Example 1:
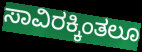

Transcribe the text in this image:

ಸಾವಿರಕ್ಕಿಂತಲೂ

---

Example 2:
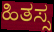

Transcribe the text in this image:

ಹಿತಸ್ಸ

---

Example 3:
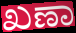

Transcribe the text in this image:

ಖಣಾ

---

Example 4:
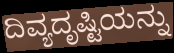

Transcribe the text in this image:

ದಿವ್ಯದೃಷ್ಟಿಯನ್ನು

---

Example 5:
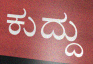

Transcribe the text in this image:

ಕುದ್ದು